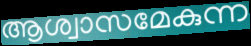
ആശ്വാസമേകുന്ന